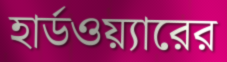
হার্ডওয়্যারের